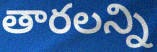
తారలన్ని